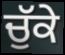
ਚੁੱਕੇ